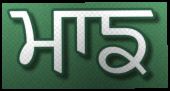
ਮਾਙ